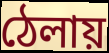
ঠেলায়